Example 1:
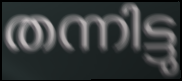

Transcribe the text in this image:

തന്നിട്ടു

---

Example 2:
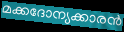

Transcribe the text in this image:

മക്കദോന്യക്കാരൻ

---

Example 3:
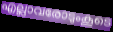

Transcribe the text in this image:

എല്ലാവരോടുംകൂടെ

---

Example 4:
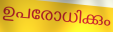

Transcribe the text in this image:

ഉപരോധിക്കും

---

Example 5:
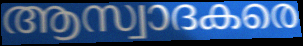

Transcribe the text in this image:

ആസ്വാദകരെ